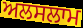
ਅਲਸਲਾਮ